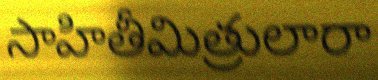
సాహితీమిత్రులారా